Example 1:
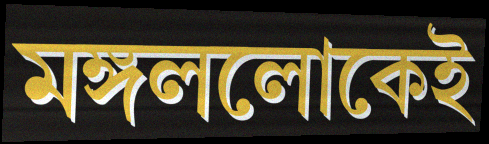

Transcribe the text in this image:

মঙ্গললোকেই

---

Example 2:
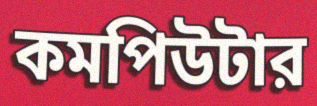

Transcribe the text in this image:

কমপিউটার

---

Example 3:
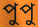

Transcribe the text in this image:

পুপু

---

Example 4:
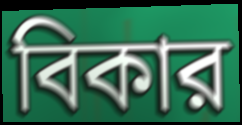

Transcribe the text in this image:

বিকার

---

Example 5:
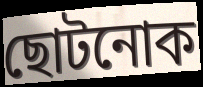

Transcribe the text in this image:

ছোটনোক